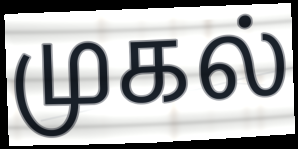
முகல்